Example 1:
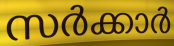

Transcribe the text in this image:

സർക്കാർ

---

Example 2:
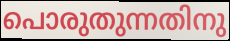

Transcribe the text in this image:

പൊരുതുന്നതിനു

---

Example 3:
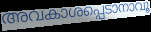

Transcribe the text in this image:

അവകാശപ്പെടാനാവൂ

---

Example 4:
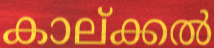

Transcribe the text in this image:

കാല്ക്കൽ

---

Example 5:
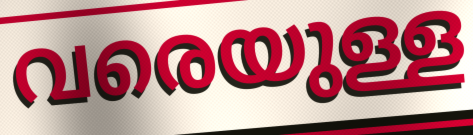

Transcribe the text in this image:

വരെയുള്ള